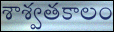
శాశ్వతకాలం